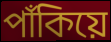
পাঁকিয়ে